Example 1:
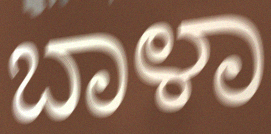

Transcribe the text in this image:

ಬಾಳಾ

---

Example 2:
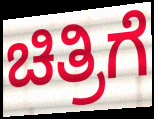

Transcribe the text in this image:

ಚಿತ್ರಿಗೆ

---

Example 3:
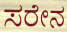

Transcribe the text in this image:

ಸರೇನ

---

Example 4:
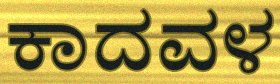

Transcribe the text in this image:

ಕಾದವಳ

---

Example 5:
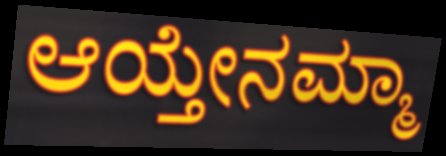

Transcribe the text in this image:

ಆಯ್ತೇನಮ್ಮಾ